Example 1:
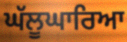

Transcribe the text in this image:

ਘੱਲੂਘਾਰਿਆ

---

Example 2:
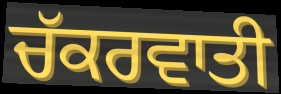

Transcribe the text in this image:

ਚੱਕਰਵਾਤੀ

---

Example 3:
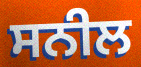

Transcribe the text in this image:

ਸਨੀਲ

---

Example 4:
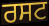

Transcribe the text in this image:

ਰਸਟ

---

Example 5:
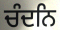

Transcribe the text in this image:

ਚੰਦਨਿ